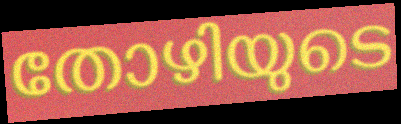
തോഴിയുടെ